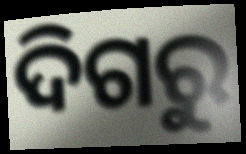
ଦିଗରୁ